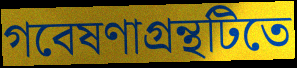
গবেষণাগ্রন্থটিতে